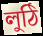
লুঠি